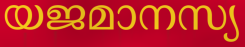
യജമാനസ്യ